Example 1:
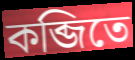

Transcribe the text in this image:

কব্জিতে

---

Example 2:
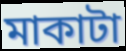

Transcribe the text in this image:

মাকাটা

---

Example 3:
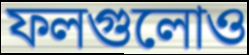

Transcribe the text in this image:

ফলগুলোও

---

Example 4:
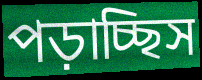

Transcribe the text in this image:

পড়াচ্ছিস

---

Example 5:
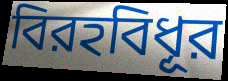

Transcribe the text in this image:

বিরহবিধূর